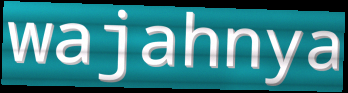
wajahnya